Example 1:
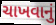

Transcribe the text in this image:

ચાખવાનું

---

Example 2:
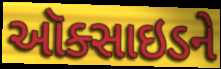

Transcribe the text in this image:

ઑક્સાઇડને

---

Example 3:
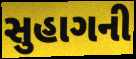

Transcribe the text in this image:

સુહાગની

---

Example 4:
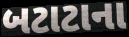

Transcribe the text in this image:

બટાટાના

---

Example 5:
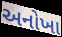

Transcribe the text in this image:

અનોખા